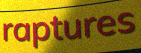
raptures